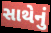
સાથેનું